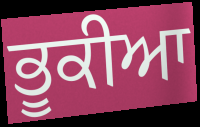
ਭੂਕੀਆ